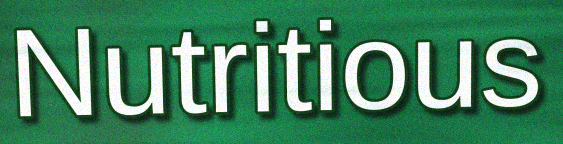
Nutritious